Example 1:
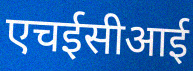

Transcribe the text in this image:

एचईसीआई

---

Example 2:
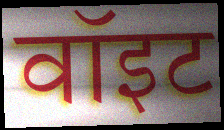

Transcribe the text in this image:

वॉइट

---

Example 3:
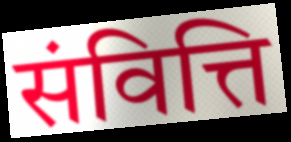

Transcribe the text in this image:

संवित्ति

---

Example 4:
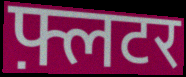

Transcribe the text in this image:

फ़्लटर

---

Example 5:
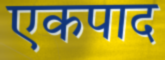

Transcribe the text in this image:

एकपाद